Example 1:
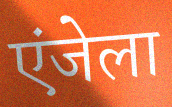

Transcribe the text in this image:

एंजेला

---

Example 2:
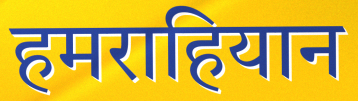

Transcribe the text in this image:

हमराहियान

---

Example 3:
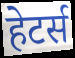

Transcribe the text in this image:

हेटर्स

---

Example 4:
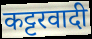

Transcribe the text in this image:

कट्टरवादी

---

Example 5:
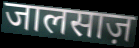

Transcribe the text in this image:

जालसाज़